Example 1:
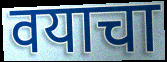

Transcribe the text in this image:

वयाचा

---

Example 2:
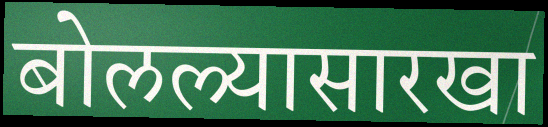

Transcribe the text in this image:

बोलल्यासारखा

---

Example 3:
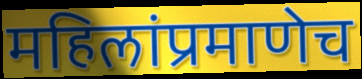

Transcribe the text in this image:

महिलांप्रमाणेच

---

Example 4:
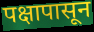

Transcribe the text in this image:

पक्षापासून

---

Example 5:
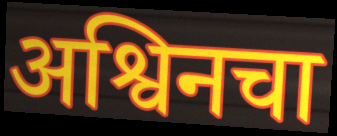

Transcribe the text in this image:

अश्विनचा